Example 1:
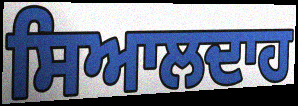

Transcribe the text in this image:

ਸਿਆਲਦਾਹ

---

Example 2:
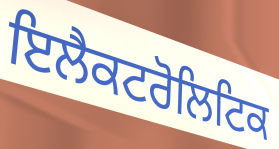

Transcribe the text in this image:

ਇਲੈਕਟਰੋਲਿਟਿਕ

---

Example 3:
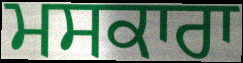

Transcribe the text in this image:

ਮਸਕਾਰਾ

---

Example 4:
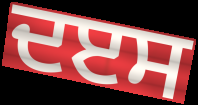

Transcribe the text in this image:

ਦੲਸ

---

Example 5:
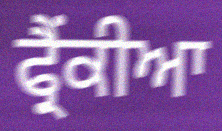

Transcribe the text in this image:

ਫ੍ਰੈਂਕੀਆ